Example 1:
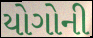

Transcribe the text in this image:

યોગોની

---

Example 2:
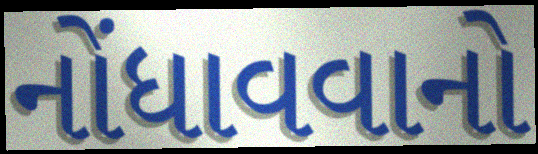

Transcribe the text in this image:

નોંધાવવાનો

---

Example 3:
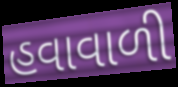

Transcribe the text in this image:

હવાવાળી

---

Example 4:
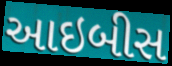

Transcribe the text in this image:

આઇબીસ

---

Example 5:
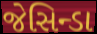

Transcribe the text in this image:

જેસિન્ડા